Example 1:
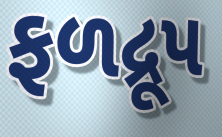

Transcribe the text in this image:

ફળદ્રૂપ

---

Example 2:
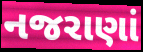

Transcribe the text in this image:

નજરાણાં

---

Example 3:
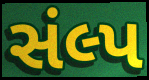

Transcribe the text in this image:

સંલ્પ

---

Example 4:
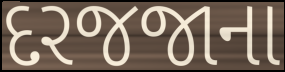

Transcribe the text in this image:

દરજજાના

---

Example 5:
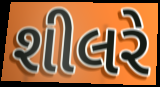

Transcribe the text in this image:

શીલરે